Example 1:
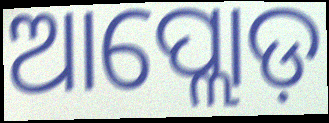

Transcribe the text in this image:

ଆପ୍ଲୋଡ଼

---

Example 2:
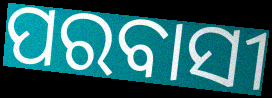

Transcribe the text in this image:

ପରବାସୀ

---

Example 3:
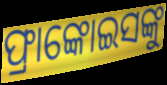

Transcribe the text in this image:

ଫ୍ରାଙ୍କୋଇସଙ୍କୁ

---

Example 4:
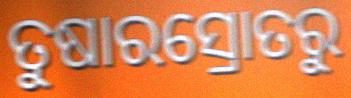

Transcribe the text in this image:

ତୁଷାରସ୍ରୋତରୁ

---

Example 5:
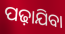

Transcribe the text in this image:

ପଢ଼ାଯିବା